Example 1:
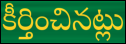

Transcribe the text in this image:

కీర్తించినట్లు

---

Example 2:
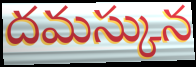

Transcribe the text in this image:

దమస్కున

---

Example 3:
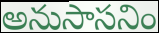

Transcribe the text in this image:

అనుసాసనిం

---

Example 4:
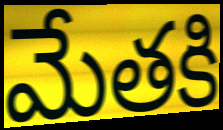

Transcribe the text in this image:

మేతకి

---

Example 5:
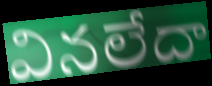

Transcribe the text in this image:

వినలేదా